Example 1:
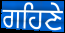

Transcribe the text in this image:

ਗਹਿਣੇ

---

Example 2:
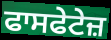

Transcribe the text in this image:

ਫਾਸਫੇਟੇਜ਼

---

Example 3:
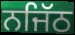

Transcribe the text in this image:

ਨਜਿੱਠ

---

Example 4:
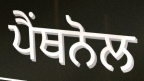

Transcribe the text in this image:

ਪੈਂਥਨੋਲ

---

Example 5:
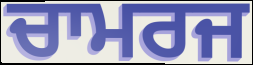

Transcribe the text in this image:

ਚਾਮਰਜ